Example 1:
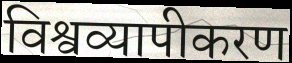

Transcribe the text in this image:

विश्वव्यापीकरण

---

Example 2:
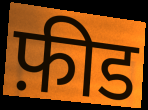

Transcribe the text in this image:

फ़ीड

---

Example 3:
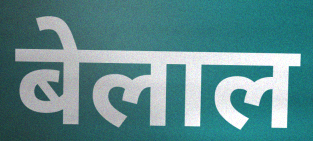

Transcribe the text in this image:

बेलाल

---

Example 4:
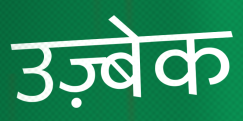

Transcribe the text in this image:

उज़्बेक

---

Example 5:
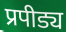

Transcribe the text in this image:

प्रपीड्य